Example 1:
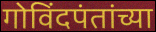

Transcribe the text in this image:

गोविंदपंतांच्या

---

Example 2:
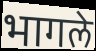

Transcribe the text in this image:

भागले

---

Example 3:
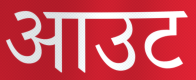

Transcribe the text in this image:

आउट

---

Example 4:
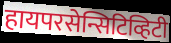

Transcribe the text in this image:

हायपरसेन्सिटिव्हिटी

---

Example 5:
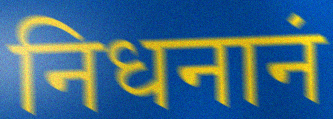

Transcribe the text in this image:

निधनानं